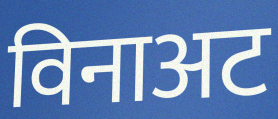
विनाअट